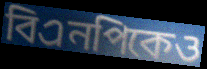
বিএনপিকেও